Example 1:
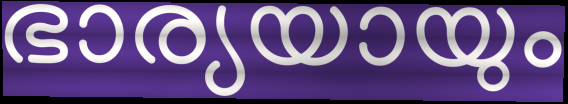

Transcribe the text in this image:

ഭാര്യയായും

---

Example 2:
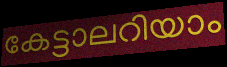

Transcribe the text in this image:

കേട്ടാലറിയാം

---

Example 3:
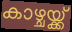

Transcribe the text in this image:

കാഴ്ചയ്ക്ക്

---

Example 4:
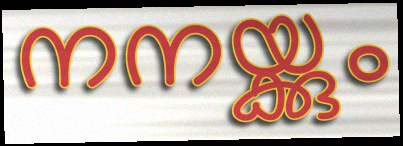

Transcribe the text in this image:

നനയ്ക്കും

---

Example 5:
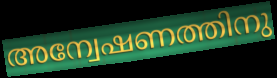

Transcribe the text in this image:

അന്വേഷണത്തിനു